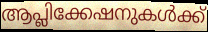
ആപ്ലിക്കേഷനുകൾക്ക്